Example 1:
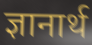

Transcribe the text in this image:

ज्ञानार्थ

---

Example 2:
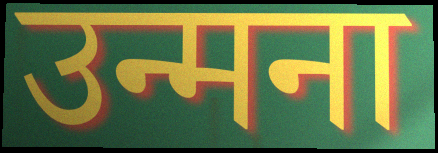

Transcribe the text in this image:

उन्मना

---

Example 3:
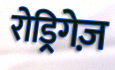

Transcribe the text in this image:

रोड्रिगेज़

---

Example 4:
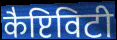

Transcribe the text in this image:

कैप्टिविटी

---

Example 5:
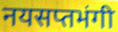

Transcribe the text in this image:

नयसप्तभंगी